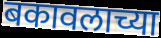
बकावलाच्या